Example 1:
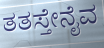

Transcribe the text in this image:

ತತಸ್ತೇನೈವ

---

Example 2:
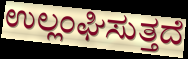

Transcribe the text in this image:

ಉಲ್ಲಂಘಿಸುತ್ತದೆ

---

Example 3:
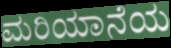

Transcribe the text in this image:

ಮರಿಯಾನೆಯ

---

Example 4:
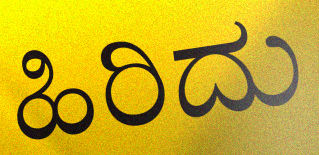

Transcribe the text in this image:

ಹಿರಿದು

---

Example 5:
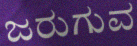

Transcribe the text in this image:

ಜರುಗುವ